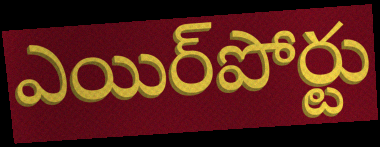
ఎయిర్‌పోర్టు